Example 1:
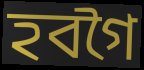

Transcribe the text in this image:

হবগৈ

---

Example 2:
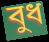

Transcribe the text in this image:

বুধ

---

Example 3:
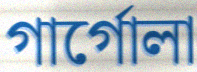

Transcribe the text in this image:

গাৰ্গোলা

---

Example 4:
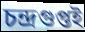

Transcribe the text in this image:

চন্দ্ৰগুপ্তই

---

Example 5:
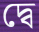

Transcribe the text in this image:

দ্বে